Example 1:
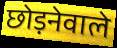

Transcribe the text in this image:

छोड़नेवाले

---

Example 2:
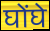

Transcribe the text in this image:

घोंघे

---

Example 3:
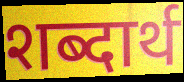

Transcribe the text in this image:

शब्दार्थ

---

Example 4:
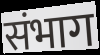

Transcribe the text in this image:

संभाग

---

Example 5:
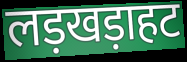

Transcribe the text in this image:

लड़खड़ाहट